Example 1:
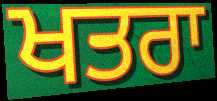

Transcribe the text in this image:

ਖਤਰਾ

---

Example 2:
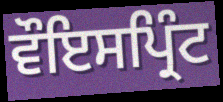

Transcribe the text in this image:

ਵੌਇਸਪ੍ਰਿੰਟ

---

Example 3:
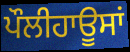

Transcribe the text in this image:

ਪੌਲੀਹਾਊਸਾਂ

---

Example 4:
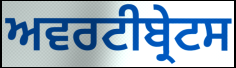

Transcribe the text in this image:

ਅਵਰਟੀਬ੍ਰੇਟਸ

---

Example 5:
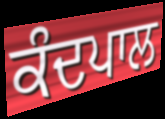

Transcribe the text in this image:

ਕੰਦਪਾਲ